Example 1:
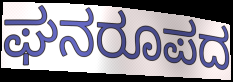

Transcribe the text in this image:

ಘನರೂಪದ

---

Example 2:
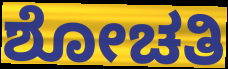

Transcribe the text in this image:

ಶೋಚತಿ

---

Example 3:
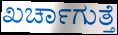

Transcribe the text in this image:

ಖರ್ಚಾಗುತ್ತೆ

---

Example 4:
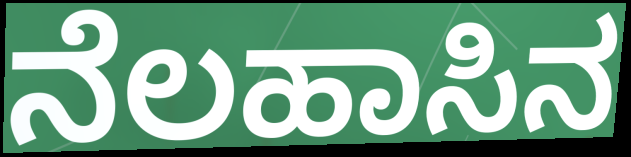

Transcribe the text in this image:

ನೆಲಹಾಸಿನ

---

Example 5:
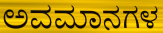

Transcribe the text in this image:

ಅವಮಾನಗಳ